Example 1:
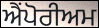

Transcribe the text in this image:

ਐਂਪੋਰੀਅਮ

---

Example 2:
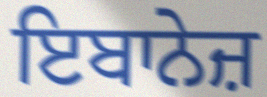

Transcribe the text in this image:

ਇਬਾਨੇਜ਼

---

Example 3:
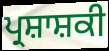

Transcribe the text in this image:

ਪ੍ਰਸ਼ਾਸ਼ਕੀ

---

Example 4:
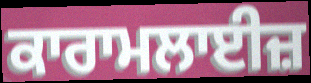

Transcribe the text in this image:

ਕਾਰਾਮਲਾਈਜ਼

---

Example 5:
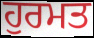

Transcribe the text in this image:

ਹੁਰਮਤ